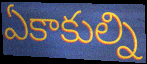
ఏకాకుల్ని